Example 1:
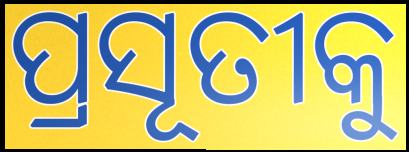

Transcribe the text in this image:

ପ୍ରସୂତୀକୁ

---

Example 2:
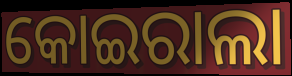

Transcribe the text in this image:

କୋଇରାଲା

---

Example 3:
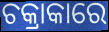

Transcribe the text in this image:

ଚକ୍ରାକାରେ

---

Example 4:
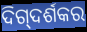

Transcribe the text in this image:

ଦିଗ୍‌ଦର୍ଶକର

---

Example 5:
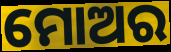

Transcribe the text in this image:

ମୋଅର